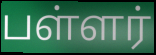
பள்ளர்